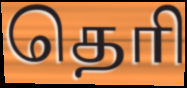
தெரி